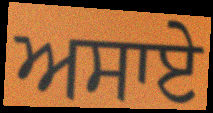
ਅਸਾਏ